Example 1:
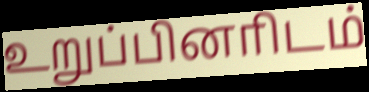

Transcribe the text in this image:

உறுப்பினரிடம்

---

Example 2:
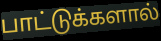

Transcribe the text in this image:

பாட்டுக்களால்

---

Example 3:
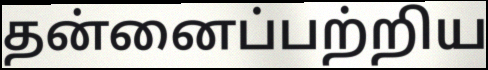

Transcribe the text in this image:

தன்னைப்பற்றிய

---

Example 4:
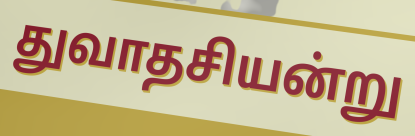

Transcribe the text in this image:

துவாதசியன்று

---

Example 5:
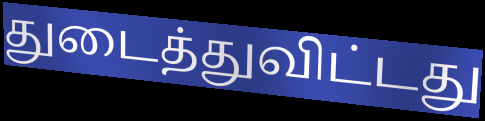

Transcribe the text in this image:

துடைத்துவிட்டது